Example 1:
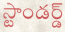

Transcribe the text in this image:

స్టాండర్డ్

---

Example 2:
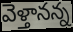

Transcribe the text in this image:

వెళ్తానన్న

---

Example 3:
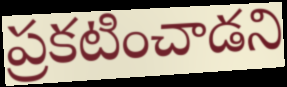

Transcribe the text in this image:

ప్రకటించాడని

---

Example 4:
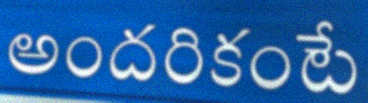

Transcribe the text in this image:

అందరికంటే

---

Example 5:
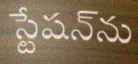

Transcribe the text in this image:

స్టేషన్‌ను